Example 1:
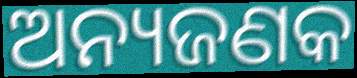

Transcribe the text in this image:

ଅନ୍ୟଜଣକ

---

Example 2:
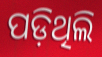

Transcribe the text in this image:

ପଡ଼ିଥିଲି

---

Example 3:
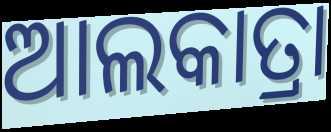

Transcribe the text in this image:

ଆଲକାତ୍ରା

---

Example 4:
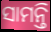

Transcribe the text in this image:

ସାମନ୍ତି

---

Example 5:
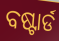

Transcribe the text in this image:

ବଷ୍ଟାର୍ଡ